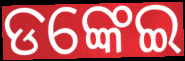
ଡଙ୍କେଇ